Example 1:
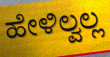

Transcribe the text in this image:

ಹೇಳಿಲ್ವಲ್ಲ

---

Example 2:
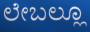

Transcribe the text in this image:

ಲೇಬಲ್ಲೂ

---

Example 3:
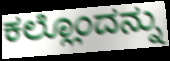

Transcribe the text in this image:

ಕಲ್ಲೊಂದನ್ನು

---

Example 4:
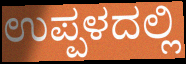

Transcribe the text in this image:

ಉಪ್ಪಳದಲ್ಲಿ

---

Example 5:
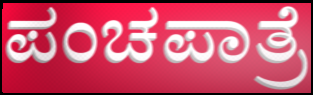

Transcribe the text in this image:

ಪಂಚಪಾತ್ರೆ